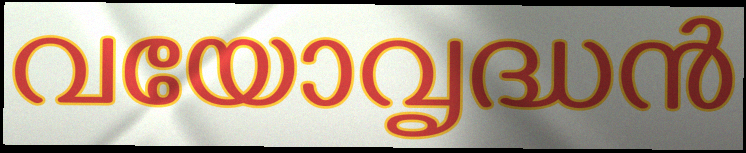
വയോവൃദ്ധൻ